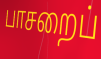
பாசறைப்